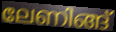
ലേണിങ്ങ്